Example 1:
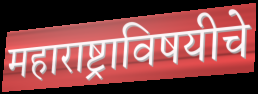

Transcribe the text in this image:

महाराष्ट्राविषयीचे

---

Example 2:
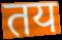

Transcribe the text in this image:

तय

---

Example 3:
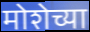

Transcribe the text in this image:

मोशेच्या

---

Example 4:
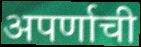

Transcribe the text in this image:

अपर्णाची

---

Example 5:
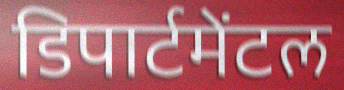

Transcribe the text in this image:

डिपार्टमेंटल